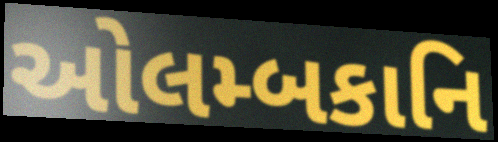
ઓલમ્બકાનિ